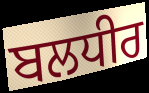
ਬਲਧੀਰ